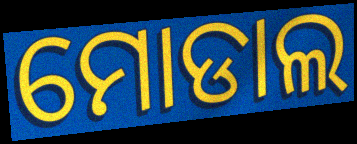
ମୋଡାଲ